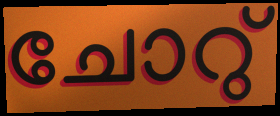
ചോറു്